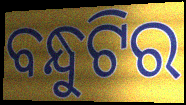
ବନ୍ଧୁଟିର